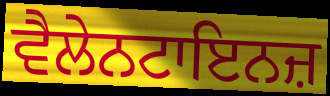
ਵੈਲੇਨਟਾਇਨਜ਼